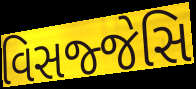
વિસજ્જેસિ